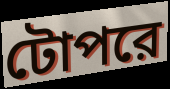
টোপরে